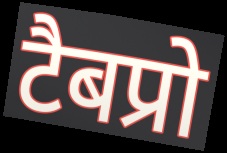
टैबप्रो